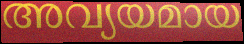
അവ്യയമായ